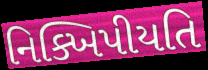
નિક્ખિપીયતિ